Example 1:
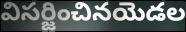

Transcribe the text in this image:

విసర్జించినయెడల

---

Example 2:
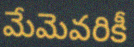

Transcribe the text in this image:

మేమెవరికీ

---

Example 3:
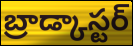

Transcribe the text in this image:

బ్రాడ్కాస్టర్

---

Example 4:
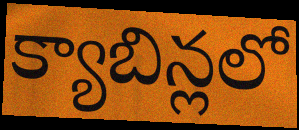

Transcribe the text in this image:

క్యాబిన్లలో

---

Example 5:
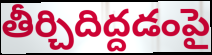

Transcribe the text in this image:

తీర్చిదిద్దడంపై